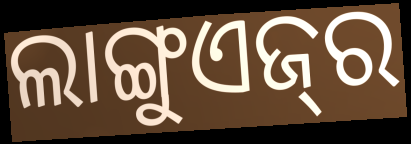
ଲାଙ୍ଗୁଏଜ୍‌ର